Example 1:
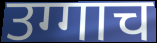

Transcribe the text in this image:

उग्गाच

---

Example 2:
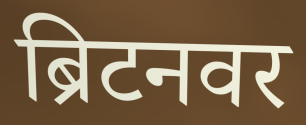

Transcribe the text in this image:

ब्रिटनवर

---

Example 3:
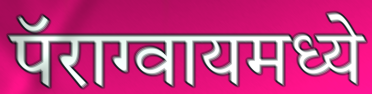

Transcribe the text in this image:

पॅराग्वायमध्ये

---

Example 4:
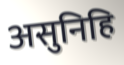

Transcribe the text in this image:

असुनिहि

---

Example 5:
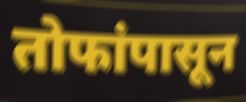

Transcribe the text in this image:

तोफांपासून